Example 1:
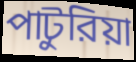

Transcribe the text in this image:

পাটুরিয়া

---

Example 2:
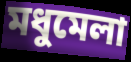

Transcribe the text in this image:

মধুমেলা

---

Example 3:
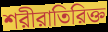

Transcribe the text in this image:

শরীরাতিরিক্ত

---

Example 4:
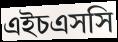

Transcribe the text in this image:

এইচএসসি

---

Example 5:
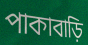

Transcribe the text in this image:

পাকাবাড়ি